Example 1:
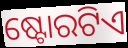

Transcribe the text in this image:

ଷ୍ଟୋରଟିଏ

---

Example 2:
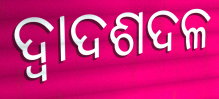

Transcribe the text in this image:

ଦ୍ୱାଦଶଦଳ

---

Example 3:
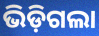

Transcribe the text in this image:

ଭିଡ଼ିଗଲା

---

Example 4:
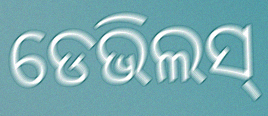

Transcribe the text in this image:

ଡେଭିଲସ୍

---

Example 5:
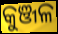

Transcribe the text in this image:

କୁଞ୍ଜଳ